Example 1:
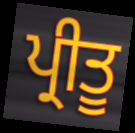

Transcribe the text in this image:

ਪ੍ਰੀਤੂ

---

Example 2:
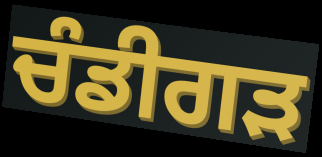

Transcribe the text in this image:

ਚੰਡੀਗਡ਼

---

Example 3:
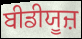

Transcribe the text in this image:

ਬੀਡੀਯੂਜ਼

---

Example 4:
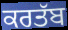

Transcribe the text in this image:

ਕਰਤੱਬ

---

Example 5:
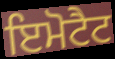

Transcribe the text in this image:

ਇਮੋਟੈਟ